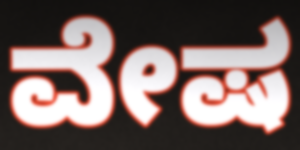
ವೇಷ